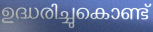
ഉദ്ധരിച്ചുകൊണ്ട്